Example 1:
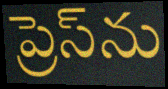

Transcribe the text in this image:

ప్రెస్‌ను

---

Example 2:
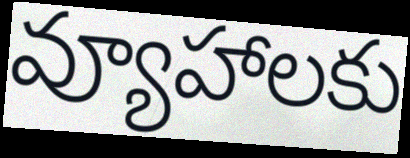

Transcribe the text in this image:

వ్యూహాలకు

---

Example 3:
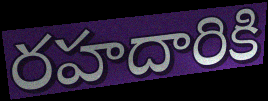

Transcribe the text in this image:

రహదారికి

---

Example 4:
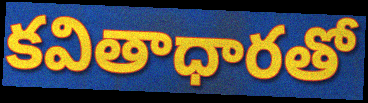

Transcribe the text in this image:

కవితాధారతో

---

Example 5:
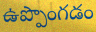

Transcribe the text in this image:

ఉప్పొంగడం